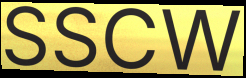
SSCW